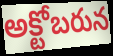
అక్టోబరున